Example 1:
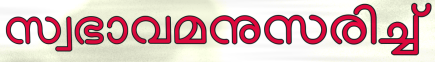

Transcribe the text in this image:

സ്വഭാവമനുസരിച്ച്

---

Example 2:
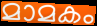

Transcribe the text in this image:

മാമകം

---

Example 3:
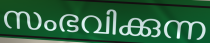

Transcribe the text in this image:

സംഭവിക്കുന്ന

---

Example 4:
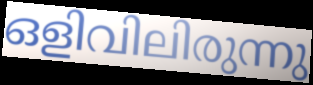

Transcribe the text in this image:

ഒളിവിലിരുന്നു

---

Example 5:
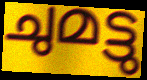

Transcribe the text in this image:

ചുമട്ടു